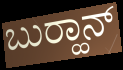
ಬುರ‍್ಹಾನ್